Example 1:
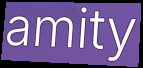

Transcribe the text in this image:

amity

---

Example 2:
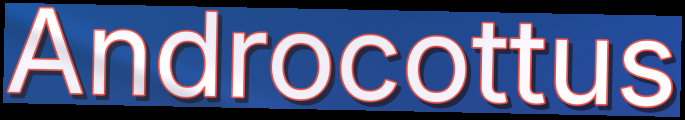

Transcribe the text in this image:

Androcottus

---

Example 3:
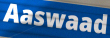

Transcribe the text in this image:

Aaswaad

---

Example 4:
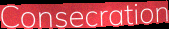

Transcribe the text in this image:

Consecration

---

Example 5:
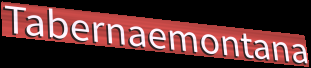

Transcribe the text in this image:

Tabernaemontana